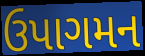
ઉપાગમન